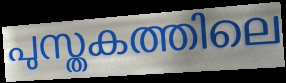
പുസ്തകത്തിലെ